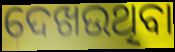
ଦେଖଉଥିବା